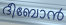
ദീബോൻ